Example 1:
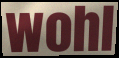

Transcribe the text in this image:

wohl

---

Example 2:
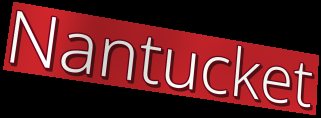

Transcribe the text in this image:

Nantucket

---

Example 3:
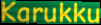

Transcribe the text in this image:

Karukku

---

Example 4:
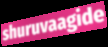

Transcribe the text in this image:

shuruvaagide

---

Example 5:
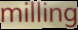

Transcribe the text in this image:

milling